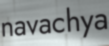
navachya